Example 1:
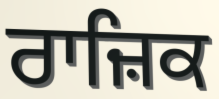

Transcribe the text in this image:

ਰਾਜ਼ਿਕ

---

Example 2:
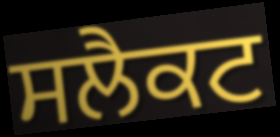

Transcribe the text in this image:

ਸਲੈਕਟ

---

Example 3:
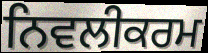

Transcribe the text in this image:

ਨਿਵਲੀਕਰਮ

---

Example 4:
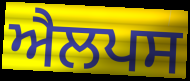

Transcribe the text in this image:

ਐਲਪਸ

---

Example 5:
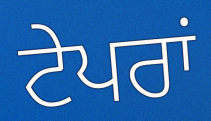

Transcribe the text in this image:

ਟੇਪਰਾਂ